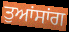
ਤੁਆਂਸਾਂਗ